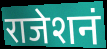
राजेशनं